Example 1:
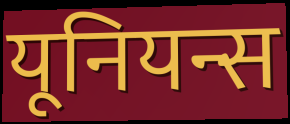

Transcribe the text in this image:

यूनियन्स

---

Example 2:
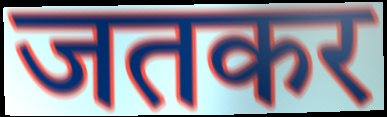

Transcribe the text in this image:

जतकर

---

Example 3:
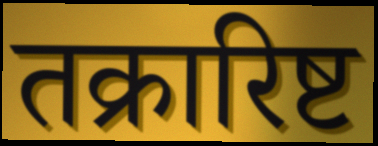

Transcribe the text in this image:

तक्रारिष्ट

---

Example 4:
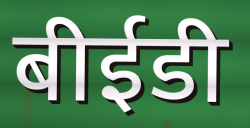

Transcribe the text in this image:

बीईडी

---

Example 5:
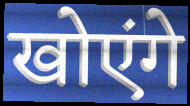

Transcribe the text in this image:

खोएंगे